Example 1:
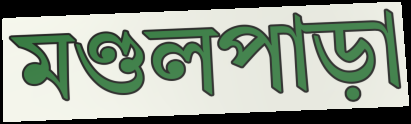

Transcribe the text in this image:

মণ্ডলপাড়া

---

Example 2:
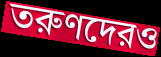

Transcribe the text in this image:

তরুণদেরও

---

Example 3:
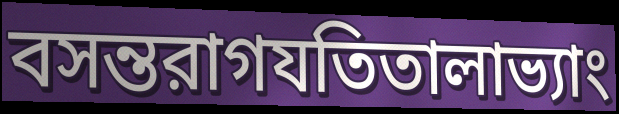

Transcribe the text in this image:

বসন্তরাগযতিতালাভ্যাং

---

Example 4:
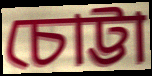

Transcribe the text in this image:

চোট্টা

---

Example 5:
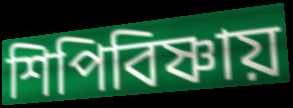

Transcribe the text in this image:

শিপিবিষ্ণায়